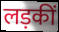
लड़कीं